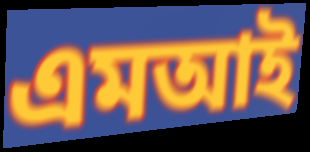
এমআই